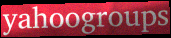
yahoogroups